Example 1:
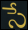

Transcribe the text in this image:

సే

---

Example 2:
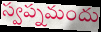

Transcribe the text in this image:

స్వప్నమందు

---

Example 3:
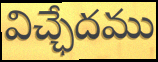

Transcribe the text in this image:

విచ్ఛేదము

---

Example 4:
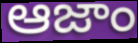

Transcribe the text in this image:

ఆజాం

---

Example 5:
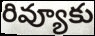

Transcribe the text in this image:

రివ్యూకు